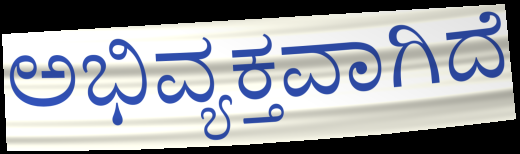
ಅಭಿವ್ಯಕ್ತವಾಗಿದೆ